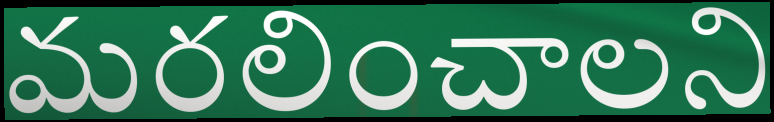
మరలించాలని